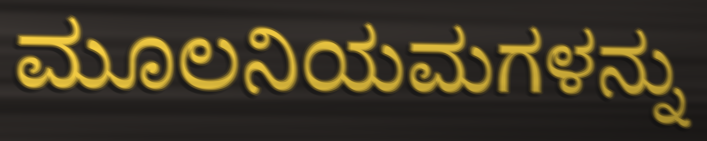
ಮೂಲನಿಯಮಗಳನ್ನು